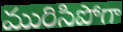
మురిసిపోగా